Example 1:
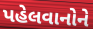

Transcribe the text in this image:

પહેલવાનોને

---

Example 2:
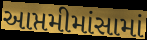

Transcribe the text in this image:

આપ્તમીમાંસામાં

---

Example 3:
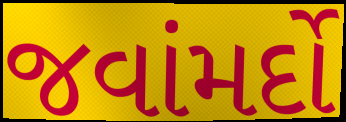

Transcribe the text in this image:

જવાંમર્દો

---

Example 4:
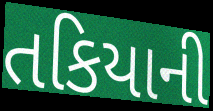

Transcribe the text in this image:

તકિયાની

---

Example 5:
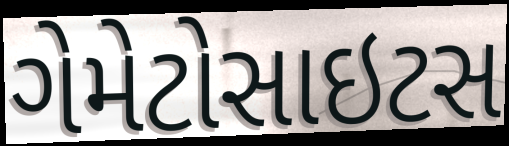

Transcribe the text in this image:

ગેમેટોસાઇટસ